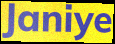
Janiye